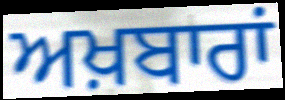
ਅਖ਼ਬਾਰਾਂ